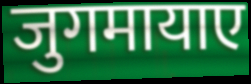
जुगमायाए